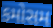
કમોસમ